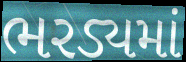
ભરડ્યમાં